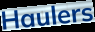
Haulers